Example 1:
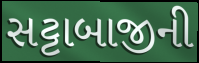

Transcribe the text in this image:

સટ્ટાબાજીની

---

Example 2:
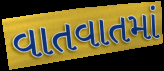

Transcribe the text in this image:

વાતવાતમાં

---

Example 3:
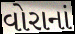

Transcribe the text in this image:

વોરાનાં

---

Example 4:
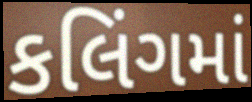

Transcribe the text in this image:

કલિંગમાં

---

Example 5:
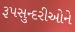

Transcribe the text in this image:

રૂપસુન્દરીઓને